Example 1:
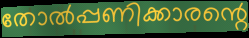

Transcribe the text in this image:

തോൽപ്പണിക്കാരന്റെ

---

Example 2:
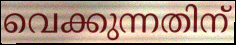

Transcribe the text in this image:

വെക്കുന്നതിന്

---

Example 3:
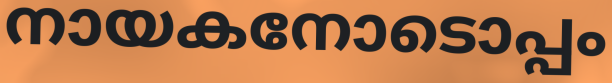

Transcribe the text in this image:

നായകനോടൊപ്പം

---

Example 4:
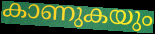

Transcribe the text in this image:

കാണുകയും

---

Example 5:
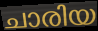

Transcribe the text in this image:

ചാരിയ